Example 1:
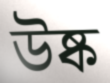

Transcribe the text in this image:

উষ্ক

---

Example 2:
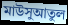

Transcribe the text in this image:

মাউসুআতুল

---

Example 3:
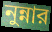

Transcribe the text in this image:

নুন্নার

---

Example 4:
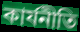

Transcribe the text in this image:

কার্যনীতি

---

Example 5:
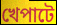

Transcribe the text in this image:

খেপাটে